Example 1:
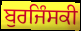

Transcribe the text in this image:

ਬੁਰਜਿੰਸਕੀ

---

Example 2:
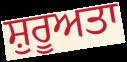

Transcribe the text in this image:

ਸ਼ੁਰੂਅਤਾ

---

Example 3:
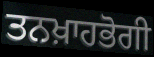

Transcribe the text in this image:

ਤਨਖ਼ਾਹਭੋਗੀ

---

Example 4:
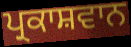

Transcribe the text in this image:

ਪ੍ਰਕਾਸ਼ਵਾਨ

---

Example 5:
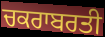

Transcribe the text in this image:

ਚਕਰਾਬਰਤੀ